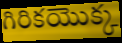
గిరికయొక్క